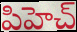
పిహెచ్